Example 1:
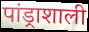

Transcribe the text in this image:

पांड्राशाली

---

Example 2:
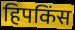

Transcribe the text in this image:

हिपकिंस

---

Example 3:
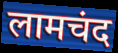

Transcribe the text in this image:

लामचंद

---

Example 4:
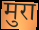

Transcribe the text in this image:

मुरा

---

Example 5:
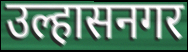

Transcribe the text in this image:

उल्हासनगर